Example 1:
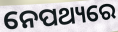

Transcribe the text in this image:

ନେପଥ୍ୟରେ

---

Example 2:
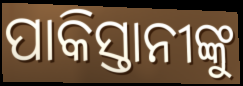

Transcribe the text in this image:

ପାକିସ୍ତାନୀଙ୍କୁ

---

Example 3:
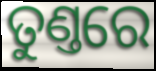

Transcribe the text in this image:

ତୁଣ୍ତରେ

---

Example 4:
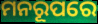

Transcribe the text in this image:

ମନରୂପରେ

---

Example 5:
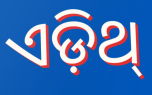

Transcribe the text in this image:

ଏଡ଼ିଥ୍